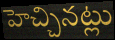
హెచ్చినట్లు